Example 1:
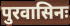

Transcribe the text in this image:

पुरवासिनः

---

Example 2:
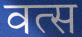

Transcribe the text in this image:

वत्स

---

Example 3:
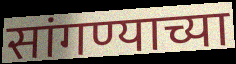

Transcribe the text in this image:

सांगण्याच्या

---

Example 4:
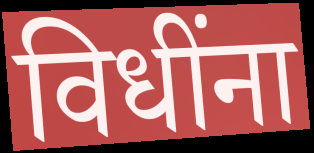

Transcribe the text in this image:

विधींना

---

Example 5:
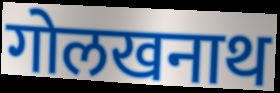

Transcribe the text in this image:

गोलखनाथ